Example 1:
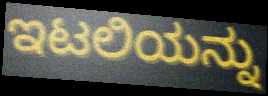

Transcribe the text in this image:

ಇಟಲಿಯನ್ನು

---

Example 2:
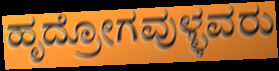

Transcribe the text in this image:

ಹೃದ್ರೋಗವುಳ್ಳವರು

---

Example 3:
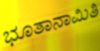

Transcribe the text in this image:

ಭೂತಾನಾಮಿತಿ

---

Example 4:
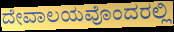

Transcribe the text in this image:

ದೇವಾಲಯವೊಂದರಲ್ಲಿ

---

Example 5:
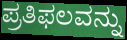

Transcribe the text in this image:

ಪ್ರತಿಫಲವನ್ನು